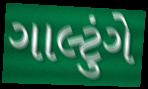
ગાલ્ટુંગે